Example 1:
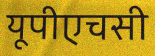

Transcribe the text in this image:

यूपीएचसी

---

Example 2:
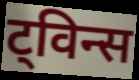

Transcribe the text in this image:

ट्विन्स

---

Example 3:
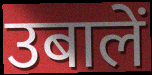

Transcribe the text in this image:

उबालें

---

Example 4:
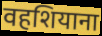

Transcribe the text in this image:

वहशियाना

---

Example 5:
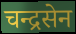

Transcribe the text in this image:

चन्द्रसेन